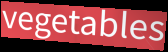
vegetables